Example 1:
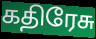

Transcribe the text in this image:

கதிரேசு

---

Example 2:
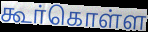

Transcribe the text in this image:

கூர்கொள்ள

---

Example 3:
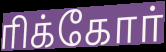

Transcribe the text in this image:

ரிக்கோர்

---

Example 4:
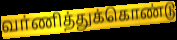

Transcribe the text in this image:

வர்ணித்துக்கொண்டு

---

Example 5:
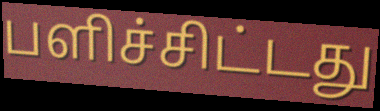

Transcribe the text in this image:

பளிச்சிட்டது